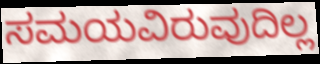
ಸಮಯವಿರುವುದಿಲ್ಲ